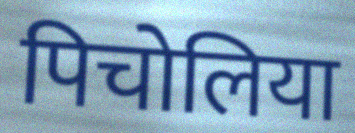
पिचोलिया